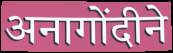
अनागोंदीने